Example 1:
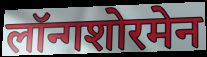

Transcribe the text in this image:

लॉन्गशोरमेन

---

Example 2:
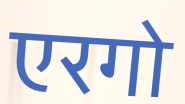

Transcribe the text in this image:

एरगो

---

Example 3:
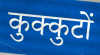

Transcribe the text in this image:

कुक्कुटों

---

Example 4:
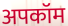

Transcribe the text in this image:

अपकॉम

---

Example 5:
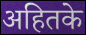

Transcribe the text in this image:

अहितके